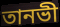
তানভী